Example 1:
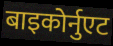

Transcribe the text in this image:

बाइकोर्नुएट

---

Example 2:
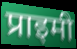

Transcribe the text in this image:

प्राइमी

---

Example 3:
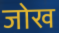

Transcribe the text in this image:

जोख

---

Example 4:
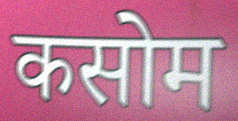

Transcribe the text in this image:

कसोम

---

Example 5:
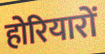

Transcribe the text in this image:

होरियारों